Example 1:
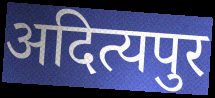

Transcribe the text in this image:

अदित्यपुर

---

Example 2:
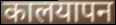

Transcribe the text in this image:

कालयापन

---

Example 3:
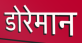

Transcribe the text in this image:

डोरेमान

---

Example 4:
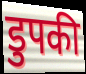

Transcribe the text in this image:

डुपकी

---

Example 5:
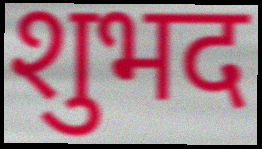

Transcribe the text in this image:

शुभद